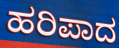
ಹರಿಪಾದ